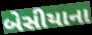
બેસીયાના